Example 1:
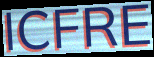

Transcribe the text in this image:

ICFRE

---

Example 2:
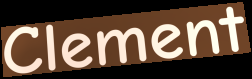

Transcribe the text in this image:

Clement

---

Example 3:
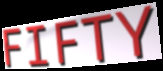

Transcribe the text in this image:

FIFTY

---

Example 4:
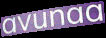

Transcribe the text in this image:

avunaa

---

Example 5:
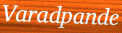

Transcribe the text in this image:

Varadpande